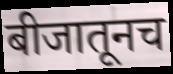
बीजातूनच